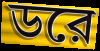
ডরে